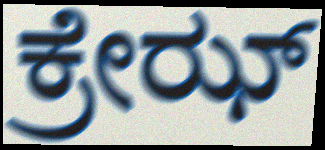
ಕ್ರೇಝ್